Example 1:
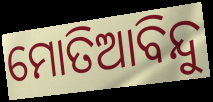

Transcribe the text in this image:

ମୋତିଆବିନ୍ଦୁ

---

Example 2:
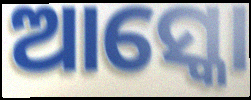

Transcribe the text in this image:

ଆସ୍କୋ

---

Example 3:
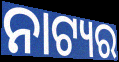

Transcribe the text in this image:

ନାଟ୍ୟର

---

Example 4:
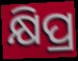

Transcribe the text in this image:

କ୍ଷିପ୍ର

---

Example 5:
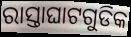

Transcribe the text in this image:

ରାସ୍ତାଘାଟଗୁଡିକ